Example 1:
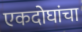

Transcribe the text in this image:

एकदोघांचा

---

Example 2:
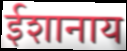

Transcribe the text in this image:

ईशानाय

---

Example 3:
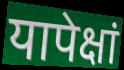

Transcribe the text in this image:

यापेक्षां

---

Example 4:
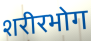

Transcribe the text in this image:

शरीरभोग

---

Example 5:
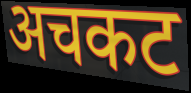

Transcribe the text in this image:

अचकट